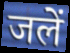
जलें